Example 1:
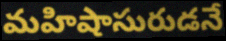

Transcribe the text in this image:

మహిషాసురుడనే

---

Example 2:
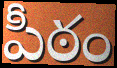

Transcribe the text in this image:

పీఠం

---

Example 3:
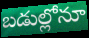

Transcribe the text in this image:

బడుల్లోనూ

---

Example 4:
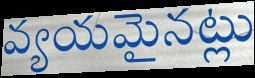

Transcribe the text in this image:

వ్యయమైనట్లు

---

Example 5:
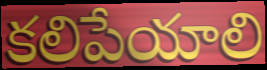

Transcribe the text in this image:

కలిపేయాలి